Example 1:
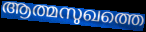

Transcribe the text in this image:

ആത്മസുഖത്തെ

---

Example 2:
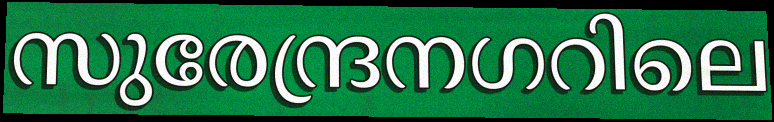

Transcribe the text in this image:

സുരേന്ദ്രനഗറിലെ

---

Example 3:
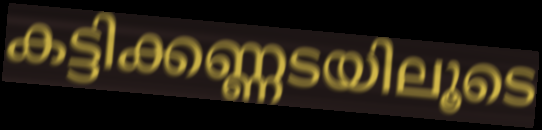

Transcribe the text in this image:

കട്ടിക്കണ്ണടയിലൂടെ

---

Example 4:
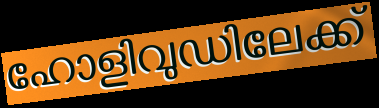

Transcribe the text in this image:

ഹോളിവുഡിലേക്ക്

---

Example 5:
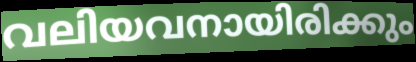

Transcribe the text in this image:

വലിയവനായിരിക്കും